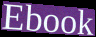
Ebook